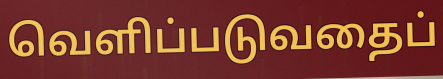
வெளிப்படுவதைப்